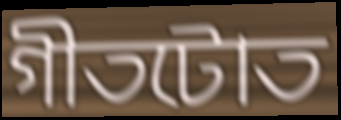
গীতটোত